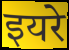
इयरे